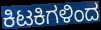
ಕಿಟಕಿಗಳಿಂದ